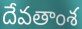
దేవతాంశ